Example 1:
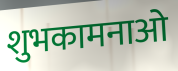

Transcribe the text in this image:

शुभकामनाओ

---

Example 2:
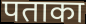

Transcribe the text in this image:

पताका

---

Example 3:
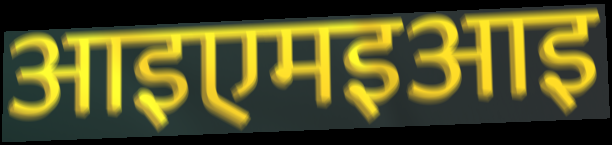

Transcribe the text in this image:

आइएमइआइ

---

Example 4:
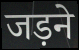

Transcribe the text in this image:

जड़ने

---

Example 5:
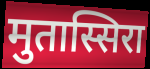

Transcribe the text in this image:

मुतास्सिरा